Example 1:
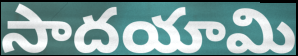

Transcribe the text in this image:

సాదయామి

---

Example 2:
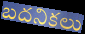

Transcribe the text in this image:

బదనికలు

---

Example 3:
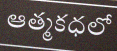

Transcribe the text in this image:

ఆత్మకధలో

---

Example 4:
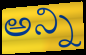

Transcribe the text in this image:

అన్ని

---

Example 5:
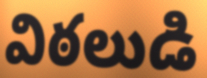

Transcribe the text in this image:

విఠలుడి